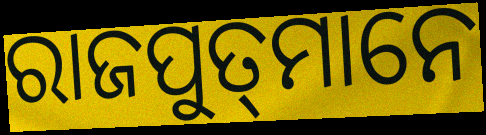
ରାଜପୁତ୍‍ମାନେ